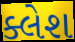
ક્લેશ